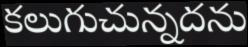
కలుగుచున్నదను